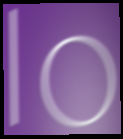
Io